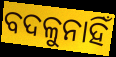
ବଦଳୁନାହିଁ